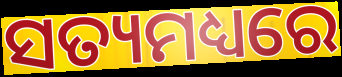
ସତ୍ୟମଧ୍ୟରେ